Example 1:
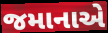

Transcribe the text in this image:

જમાનાએ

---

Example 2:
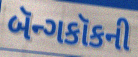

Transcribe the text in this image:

બૅન્ગકૉકની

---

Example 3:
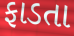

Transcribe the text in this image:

ફાડતા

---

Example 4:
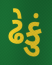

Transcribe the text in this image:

ઢેકું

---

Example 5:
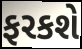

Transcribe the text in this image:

ફરકશે